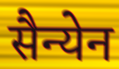
सैन्येन